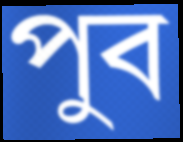
পুব